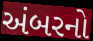
અંબરનો